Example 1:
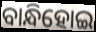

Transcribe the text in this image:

ବାନ୍ଧିହୋଇ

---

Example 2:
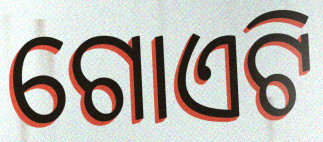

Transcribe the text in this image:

ଗୋଏଟି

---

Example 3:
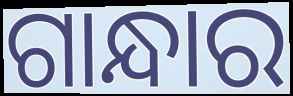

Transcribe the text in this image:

ଗାନ୍ଧାର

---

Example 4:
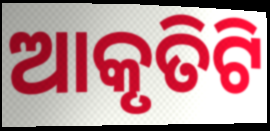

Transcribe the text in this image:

ଆକୃତିଟି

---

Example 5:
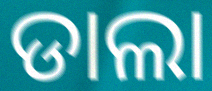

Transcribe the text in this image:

ଡାଲା